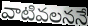
వాటివలననే